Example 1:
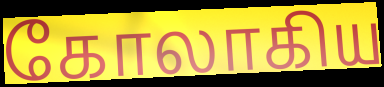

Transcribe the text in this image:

கோலாகிய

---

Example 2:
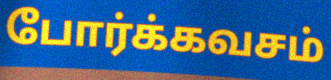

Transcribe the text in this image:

போர்க்கவசம்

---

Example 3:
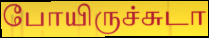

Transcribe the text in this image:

போயிருச்சுடா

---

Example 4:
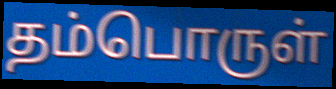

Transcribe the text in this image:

தம்பொருள்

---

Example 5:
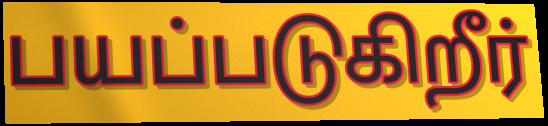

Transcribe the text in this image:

பயப்படுகிறீர்